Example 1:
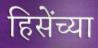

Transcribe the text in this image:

हिसेंच्या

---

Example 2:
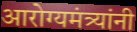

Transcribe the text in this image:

आरोग्यमंत्र्यांनी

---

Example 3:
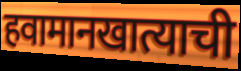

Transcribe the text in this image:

हवामानखात्याची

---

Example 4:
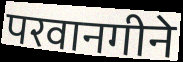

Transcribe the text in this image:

परवानगीने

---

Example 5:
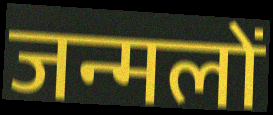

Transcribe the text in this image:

जन्मलों